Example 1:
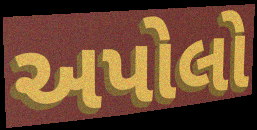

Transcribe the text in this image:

અપોલો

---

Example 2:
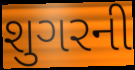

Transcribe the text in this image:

શુગરની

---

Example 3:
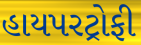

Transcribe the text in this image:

હાયપરટ્રોફી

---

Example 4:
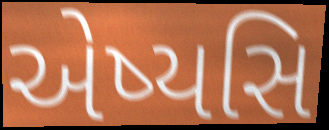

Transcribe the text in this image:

એષ્યસિ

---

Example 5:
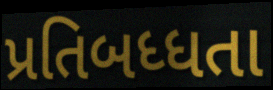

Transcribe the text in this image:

પ્રતિબધ્ધતા